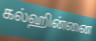
கல்ஹின்னை